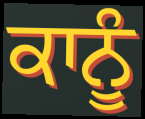
ਕਾਨੂੰ